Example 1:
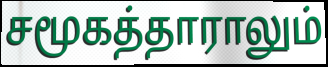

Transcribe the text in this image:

சமூகத்தாராலும்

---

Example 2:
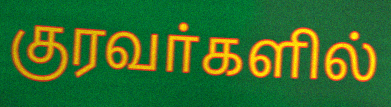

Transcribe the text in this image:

குரவர்களில்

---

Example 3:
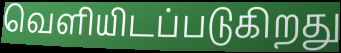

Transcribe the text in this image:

வெளியிடப்படுகிறது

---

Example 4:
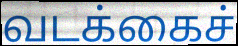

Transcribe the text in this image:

வடக்கைச்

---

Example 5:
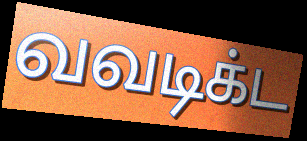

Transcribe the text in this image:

வவடிக்ட